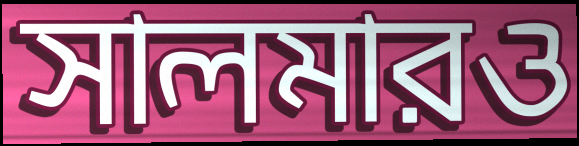
সালমারও